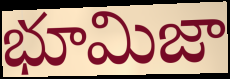
భూమిజా